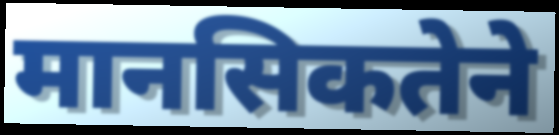
मानसिकतेने